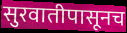
सुरवातीपासूनच